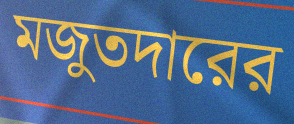
মজুতদারের